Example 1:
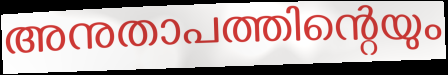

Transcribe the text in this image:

അനുതാപത്തിന്റെയും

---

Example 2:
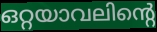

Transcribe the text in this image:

ഒറ്റയാവലിന്റെ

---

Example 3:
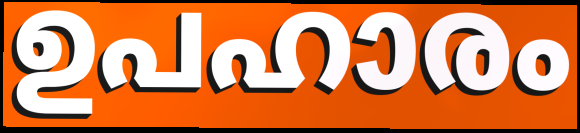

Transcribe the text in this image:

ഉപഹാരം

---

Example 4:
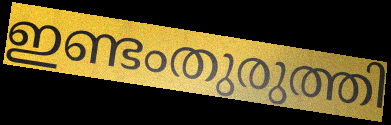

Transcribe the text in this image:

ഇണ്ടംതുരുത്തി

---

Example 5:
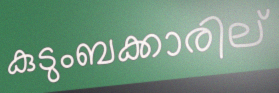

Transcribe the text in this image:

കുടുംബക്കാരില്